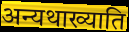
अन्यथाख्याति